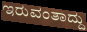
ಇರುವಂತಾದ್ದು